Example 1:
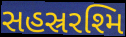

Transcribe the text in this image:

સહસ્રરશ્મિ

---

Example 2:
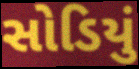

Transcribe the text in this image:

સોડિયું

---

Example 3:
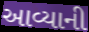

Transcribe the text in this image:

આવ્યાની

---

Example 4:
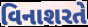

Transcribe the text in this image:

વિનાશરતે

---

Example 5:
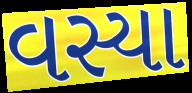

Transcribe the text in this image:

વસ્યા